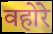
वहोरे